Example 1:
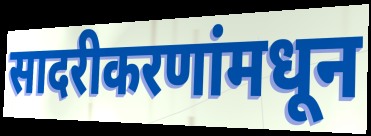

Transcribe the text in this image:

सादरीकरणांमधून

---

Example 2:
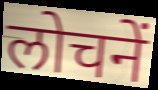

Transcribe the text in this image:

लोचनें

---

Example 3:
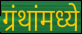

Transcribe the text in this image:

ग्रंथांमध्ये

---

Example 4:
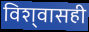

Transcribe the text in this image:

विश्वासही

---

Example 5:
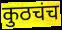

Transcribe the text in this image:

कुठचंच